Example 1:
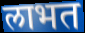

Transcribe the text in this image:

लाभत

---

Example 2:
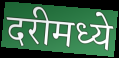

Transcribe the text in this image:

दरीमध्ये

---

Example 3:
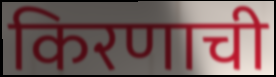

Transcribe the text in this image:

किरणाची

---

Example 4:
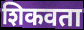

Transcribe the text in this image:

शिकवता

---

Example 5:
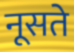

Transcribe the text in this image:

नूसते